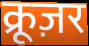
क्रूज़र